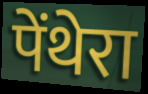
पेंथेरा